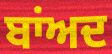
ਬਾਂਅਦ